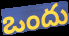
ఒందు